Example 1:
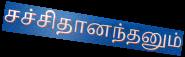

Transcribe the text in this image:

சச்சிதானந்தனும்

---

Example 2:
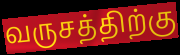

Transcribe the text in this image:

வருசத்திற்கு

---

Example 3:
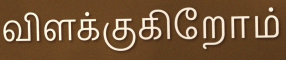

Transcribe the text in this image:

விளக்குகிறோம்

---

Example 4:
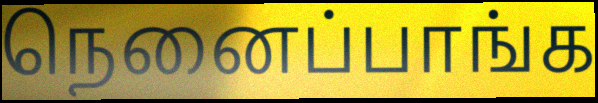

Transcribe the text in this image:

நெனைப்பாங்க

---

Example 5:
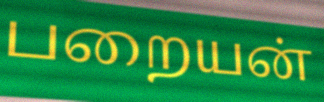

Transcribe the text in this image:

பறையன்